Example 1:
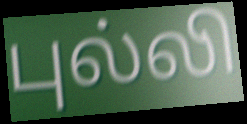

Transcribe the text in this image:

புல்லி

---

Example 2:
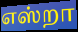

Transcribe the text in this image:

எஸ்றா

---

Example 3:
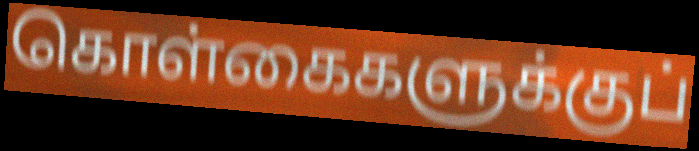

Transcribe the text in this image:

கொள்கைகளுக்குப்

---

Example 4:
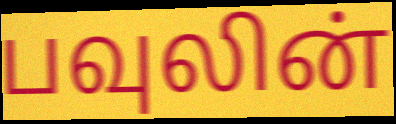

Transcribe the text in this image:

பவுலின்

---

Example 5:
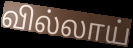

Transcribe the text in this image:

வில்லாய்